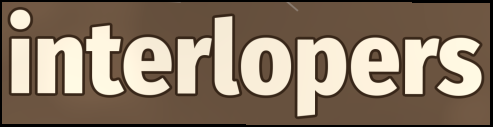
interlopers